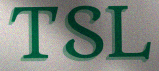
TSL